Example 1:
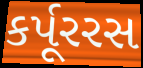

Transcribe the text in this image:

કર્પૂરરસ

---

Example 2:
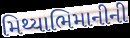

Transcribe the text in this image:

મિથ્યાભિમાનીની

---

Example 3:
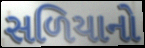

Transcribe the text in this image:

સળિયાનો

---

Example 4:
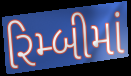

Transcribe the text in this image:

રિમ્બીમાં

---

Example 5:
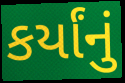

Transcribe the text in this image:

કર્યાંનું